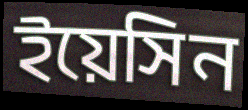
ইয়েসিন